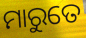
ମାରୁତେ